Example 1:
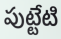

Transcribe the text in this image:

పుట్టేటి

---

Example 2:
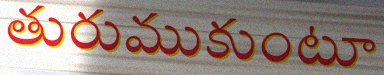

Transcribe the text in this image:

తురుముకుంటూ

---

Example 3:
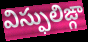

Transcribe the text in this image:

విస్ఫులిఙ్గా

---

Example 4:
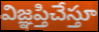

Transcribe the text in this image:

విజ్ఞప్తిచేస్తూ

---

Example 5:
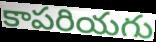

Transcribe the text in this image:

కాపరియగు